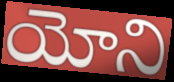
యోని